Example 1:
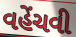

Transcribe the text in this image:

વહેંચવી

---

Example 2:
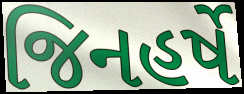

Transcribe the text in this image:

જિનહર્ષે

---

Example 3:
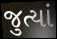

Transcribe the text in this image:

જુત્યાં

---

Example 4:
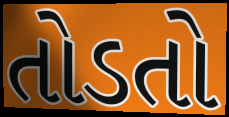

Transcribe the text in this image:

તોડતો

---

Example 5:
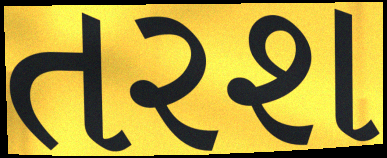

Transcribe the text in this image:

તરશ